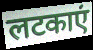
लटकाएं